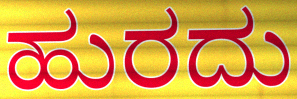
ಹುರದು